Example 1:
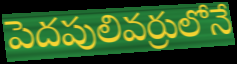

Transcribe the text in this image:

పెదపులివర్రులోనే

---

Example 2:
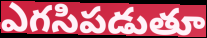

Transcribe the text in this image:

ఎగసిపడుతూ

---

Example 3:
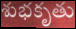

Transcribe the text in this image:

శుభకృతు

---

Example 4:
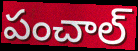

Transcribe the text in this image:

పంచాల్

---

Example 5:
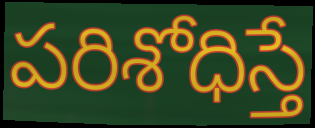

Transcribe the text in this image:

పరిశోధిస్తే